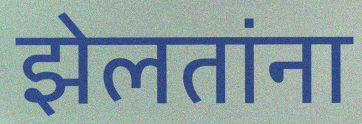
झेलतांना